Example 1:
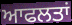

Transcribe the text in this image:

ਆਫਲਤਾਂ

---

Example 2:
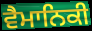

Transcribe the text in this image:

ਵੈਮਾਨਿਕੀ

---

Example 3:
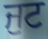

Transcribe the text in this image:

ਜੁਟ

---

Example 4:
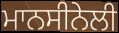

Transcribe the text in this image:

ਮਾਨਸੀਨੇਲੀ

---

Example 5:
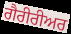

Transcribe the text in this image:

ਗੈਰੀਰੀਅਰ